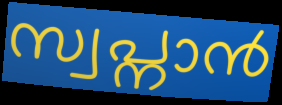
സ്വപ്നാൻ